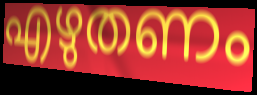
എഴുതണം